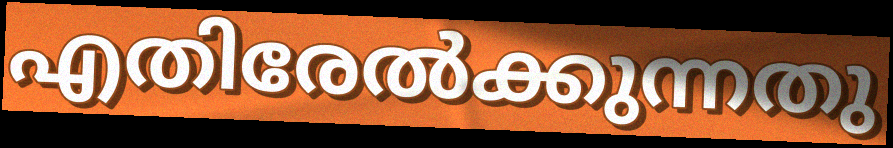
എതിരേൽക്കുന്നതു